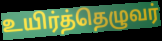
உயிர்த்தெழுவர்